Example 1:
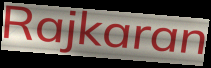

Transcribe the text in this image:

Rajkaran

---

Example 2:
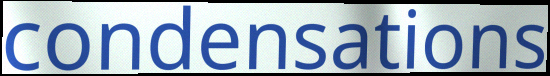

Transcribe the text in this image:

condensations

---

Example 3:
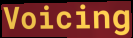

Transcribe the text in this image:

Voicing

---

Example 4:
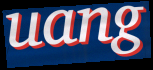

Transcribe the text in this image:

uang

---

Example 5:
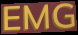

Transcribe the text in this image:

EMG